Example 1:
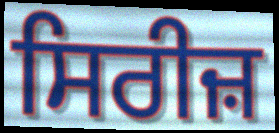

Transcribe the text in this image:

ਸਿਰੀਜ਼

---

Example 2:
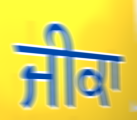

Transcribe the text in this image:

ਜੀਕਾ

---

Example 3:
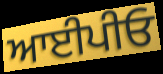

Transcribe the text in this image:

ਆਈਪੀਓ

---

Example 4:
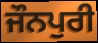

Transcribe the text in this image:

ਜੌਨਪੁਰੀ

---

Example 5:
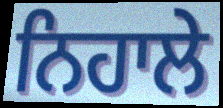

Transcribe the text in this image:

ਨਿਹਾਲੇ